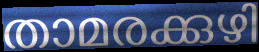
താമരക്കുഴി